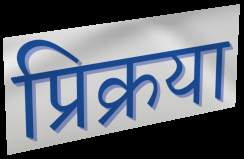
प्रिक्रया